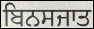
ਬਿਨਸਜਾਤ